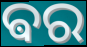
ଵର